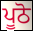
ਪੂਠੋ